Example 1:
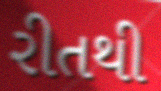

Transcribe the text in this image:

રીતથી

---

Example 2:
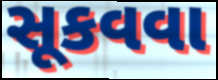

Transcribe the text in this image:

સૂકવવા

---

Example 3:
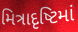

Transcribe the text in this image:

મિત્રાદૃષ્ટિમાં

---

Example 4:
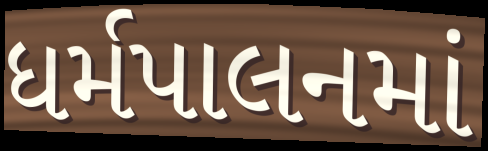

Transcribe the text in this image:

ધર્મપાલનમાં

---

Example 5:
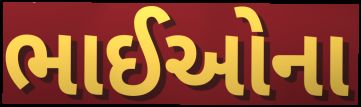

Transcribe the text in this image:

ભાઈઓના